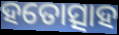
ହତୋତ୍ସାହ